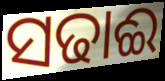
ସଢାଈ